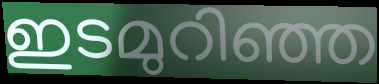
ഇടമുറിഞ്ഞ